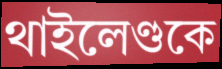
থাইলেণ্ডকে